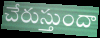
చేరుస్తుందా